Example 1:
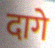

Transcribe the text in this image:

दागे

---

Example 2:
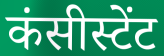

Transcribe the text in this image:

कंसीस्टेंट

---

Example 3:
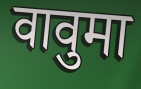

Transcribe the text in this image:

वावुमा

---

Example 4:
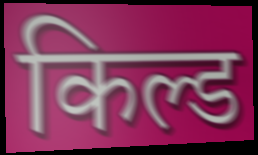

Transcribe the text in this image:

किल्ड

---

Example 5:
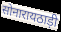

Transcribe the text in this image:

सोनारायठाड़ी